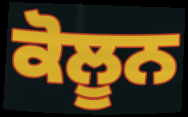
ਕੋਲੂਨ